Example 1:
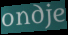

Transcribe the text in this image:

ondje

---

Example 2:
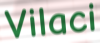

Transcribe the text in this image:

Vilaci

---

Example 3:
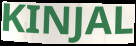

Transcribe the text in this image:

KINJAL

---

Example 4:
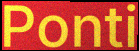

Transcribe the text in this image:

Ponti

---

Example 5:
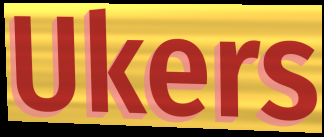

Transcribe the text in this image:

Ukers